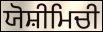
ਯੋਸ਼ੀਮਿਚੀ